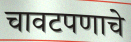
चावटपणाचे